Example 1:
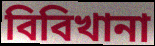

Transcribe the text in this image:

বিবিখানা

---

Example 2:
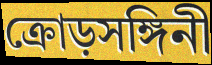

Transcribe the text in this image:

ক্রোড়সঙ্গিনী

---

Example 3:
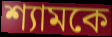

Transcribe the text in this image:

শ্যামকে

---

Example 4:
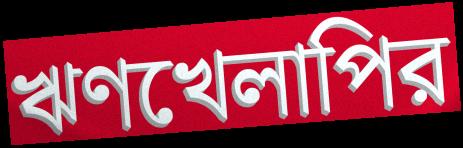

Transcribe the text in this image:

ঋণখেলাপির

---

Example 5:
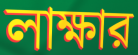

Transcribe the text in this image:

লাক্ষার